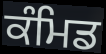
ਕੰਮਿਡ